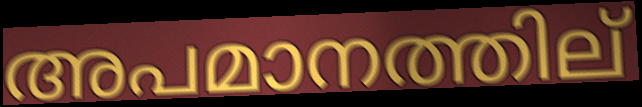
അപമാനത്തില്